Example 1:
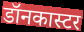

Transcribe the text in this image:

डॉनकास्टर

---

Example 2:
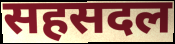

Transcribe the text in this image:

सहसदल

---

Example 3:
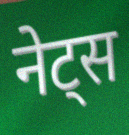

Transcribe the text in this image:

नेट्स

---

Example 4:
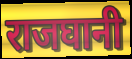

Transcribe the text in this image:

राजघानी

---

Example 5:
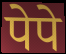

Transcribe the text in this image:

पेपे